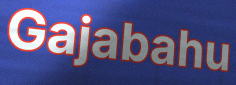
Gajabahu